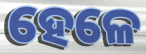
ହେଳେ